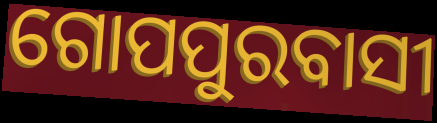
ଗୋପପୁରବାସୀ